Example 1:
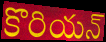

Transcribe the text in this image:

కొరియన్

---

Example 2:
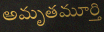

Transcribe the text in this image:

అమృతమూర్తి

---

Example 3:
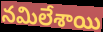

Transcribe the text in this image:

నమిలేశాయి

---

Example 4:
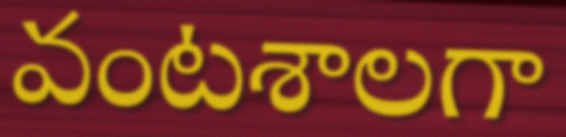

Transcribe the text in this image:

వంటశాలగా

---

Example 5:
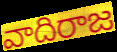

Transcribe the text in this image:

వాదిరాజ